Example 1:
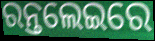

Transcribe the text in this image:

ରନ୍ତଲେଇରେ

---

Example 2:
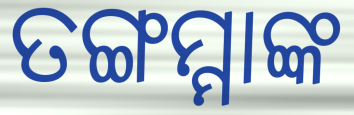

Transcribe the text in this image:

ତଙ୍ଗମ୍ମାଙ୍କ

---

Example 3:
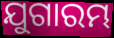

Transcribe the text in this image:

ଯୁଗାରମ୍ଭ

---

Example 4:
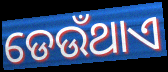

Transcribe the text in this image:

ଡେଉଁଥାଏ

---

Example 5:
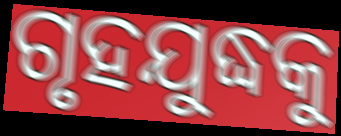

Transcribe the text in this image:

ଗୃହଯୁଦ୍ଧକୁ